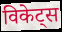
विकेट्स